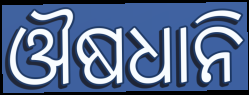
ଔଷଧାନି